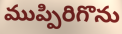
ముప్పిరిగొను